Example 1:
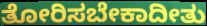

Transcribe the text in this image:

ತೋರಿಸಬೇಕಾದೀತು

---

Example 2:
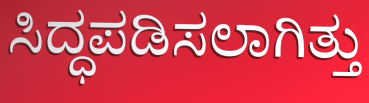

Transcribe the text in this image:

ಸಿದ್ಧಪಡಿಸಲಾಗಿತ್ತು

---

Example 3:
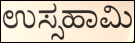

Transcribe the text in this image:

ಉಸ್ಸಹಾಮಿ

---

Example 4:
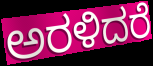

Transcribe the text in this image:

ಅರಳಿದರೆ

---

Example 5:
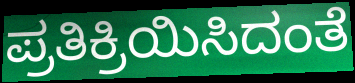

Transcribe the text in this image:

ಪ್ರತಿಕ್ರಿಯಿಸಿದಂತೆ